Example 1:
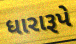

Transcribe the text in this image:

ધારારૂપે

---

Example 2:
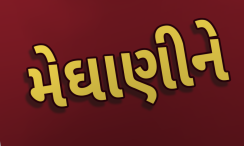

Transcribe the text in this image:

મેઘાણીને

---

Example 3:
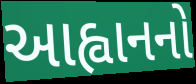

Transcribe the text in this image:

આહ્વાનનો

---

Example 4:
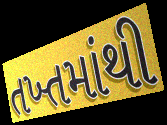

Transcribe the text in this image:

તખ્તમાંથી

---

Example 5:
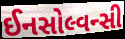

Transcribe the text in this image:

ઈનસોલ્વન્સી